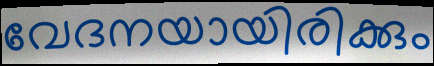
വേദനയായിരിക്കും